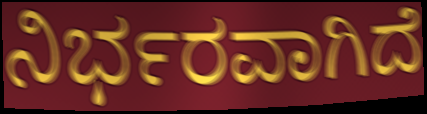
ನಿರ್ಭರವಾಗಿದೆ